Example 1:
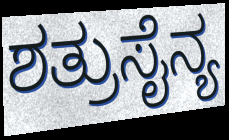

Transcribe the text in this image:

ಶತ್ರುಸೈನ್ಯ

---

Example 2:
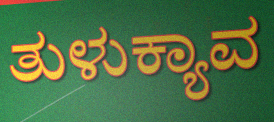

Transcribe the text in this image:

ತುಳುಕ್ಯಾವ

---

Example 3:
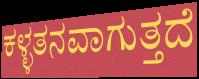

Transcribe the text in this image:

ಕಳ್ಳತನವಾಗುತ್ತದೆ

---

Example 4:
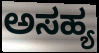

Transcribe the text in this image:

ಅಸಹ್ಯ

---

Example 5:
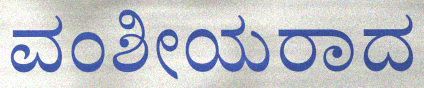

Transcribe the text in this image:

ವಂಶೀಯರಾದ